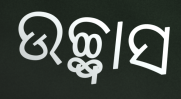
ଉଚ୍ଛ୍ୱାସ